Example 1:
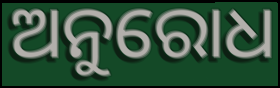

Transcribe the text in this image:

ଅନୁରୋଧ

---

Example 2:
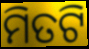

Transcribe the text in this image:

ମିତଟି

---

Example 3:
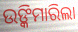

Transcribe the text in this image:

ଉଙ୍କିମାରିଲା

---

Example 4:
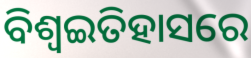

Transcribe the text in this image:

ବିଶ୍ଵଇତିହାସରେ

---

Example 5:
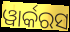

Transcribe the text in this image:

ୱାର୍କରସ